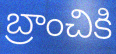
బ్రాంచికి